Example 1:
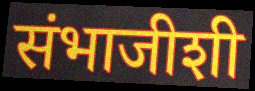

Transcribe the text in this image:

संभाजीशी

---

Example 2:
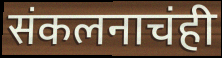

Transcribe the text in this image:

संकलनाचंही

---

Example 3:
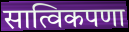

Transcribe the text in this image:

सात्विकपणा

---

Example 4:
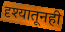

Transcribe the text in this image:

दृश्यातूनही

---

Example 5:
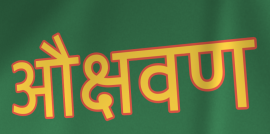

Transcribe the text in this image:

औक्षवण